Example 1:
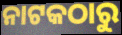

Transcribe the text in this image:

ନାଟକଠାରୁ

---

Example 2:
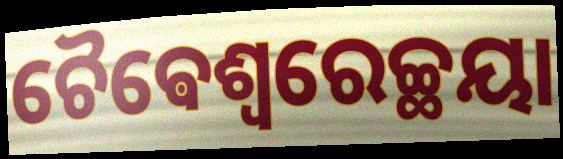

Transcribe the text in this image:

ଚୈଵେଶ୍ଵରେଚ୍ଛୟା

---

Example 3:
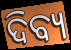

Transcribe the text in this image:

ଦିବ୍ୟ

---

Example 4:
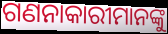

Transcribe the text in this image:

ଗଣନାକାରୀମାନଙ୍କୁ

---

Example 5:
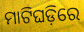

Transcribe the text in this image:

ମାଟିଘଡ଼ିରେ